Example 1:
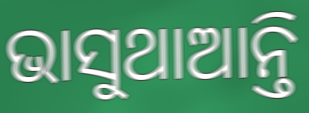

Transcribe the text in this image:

ଭାସୁଥାଆନ୍ତି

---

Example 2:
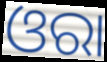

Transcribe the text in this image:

ଓରା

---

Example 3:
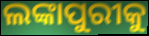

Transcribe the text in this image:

ଲଙ୍କାପୁରୀକୁ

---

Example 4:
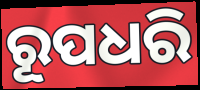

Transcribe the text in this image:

ରୂପଧରି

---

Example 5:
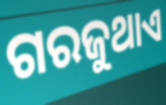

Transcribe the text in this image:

ଗରଜୁଥାଏ